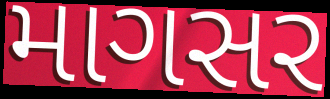
માગસર